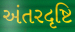
અંતરદૃષ્ટિ